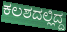
ಕಲಶದಲ್ಲಿದ್ದ